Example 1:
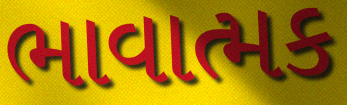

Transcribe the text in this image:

ભાવાત્મક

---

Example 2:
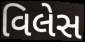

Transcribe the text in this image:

વિલેસ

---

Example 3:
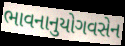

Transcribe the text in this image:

ભાવનાનુયોગવસેન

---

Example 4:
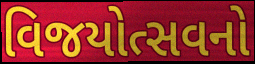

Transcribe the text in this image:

વિજયોત્સવનો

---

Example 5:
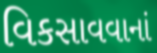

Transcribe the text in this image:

વિકસાવવાનાં